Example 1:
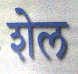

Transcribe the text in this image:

शेल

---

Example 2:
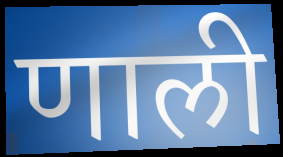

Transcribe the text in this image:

णाली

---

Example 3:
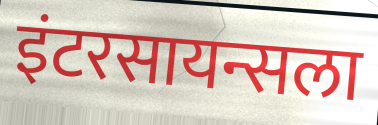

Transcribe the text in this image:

इंटरसायन्सला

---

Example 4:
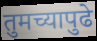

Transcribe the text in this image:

तुमच्यापुढे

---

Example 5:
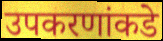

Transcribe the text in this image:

उपकरणांकडे